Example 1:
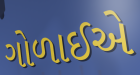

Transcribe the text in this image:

ગોળાઈએ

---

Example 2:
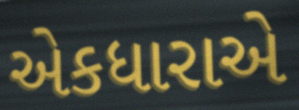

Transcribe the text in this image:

એકધારાએ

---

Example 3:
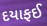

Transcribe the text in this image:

દયાફઈ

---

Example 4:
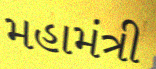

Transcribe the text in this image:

મહામંત્રી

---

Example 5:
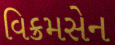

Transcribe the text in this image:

વિક્રમસેન